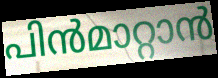
പിൻമാറ്റാൻ